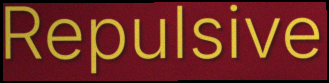
Repulsive